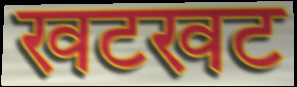
खटखट